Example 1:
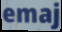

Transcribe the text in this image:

emaj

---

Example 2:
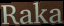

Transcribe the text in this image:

Raka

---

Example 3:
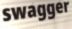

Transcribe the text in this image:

swagger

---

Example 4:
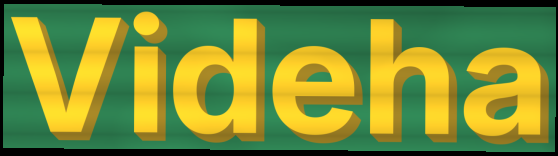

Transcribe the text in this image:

Videha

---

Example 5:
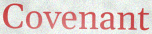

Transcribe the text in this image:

Covenant